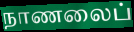
நாணலைப்